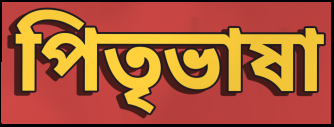
পিতৃভাষা